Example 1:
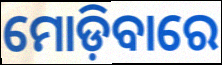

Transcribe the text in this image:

ମୋଡ଼ିବାରେ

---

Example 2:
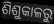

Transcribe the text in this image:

ଶିଶୁକାଳରୁ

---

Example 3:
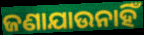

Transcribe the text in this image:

ଜଣାଯାଉନାହିଁ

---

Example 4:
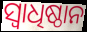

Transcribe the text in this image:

ସ୍ୱାଧିଷ୍ଠାନ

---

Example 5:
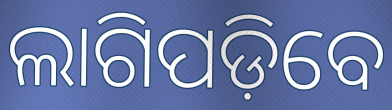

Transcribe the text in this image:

ଲାଗିପଡ଼ିବେ